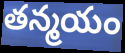
తన్మయం